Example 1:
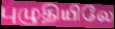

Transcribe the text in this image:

புழுதியிலே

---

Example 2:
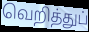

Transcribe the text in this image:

வெறித்துப்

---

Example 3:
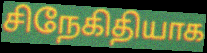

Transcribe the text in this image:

சிநேகிதியாக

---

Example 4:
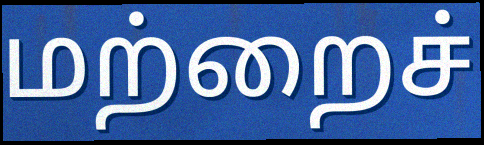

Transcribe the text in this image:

மற்றைச்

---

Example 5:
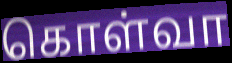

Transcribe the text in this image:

கொள்வா